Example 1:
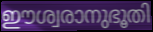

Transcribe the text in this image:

ഈശ്വരാനുഭൂതി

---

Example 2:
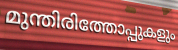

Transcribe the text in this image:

മുന്തിരിത്തോപ്പുകളും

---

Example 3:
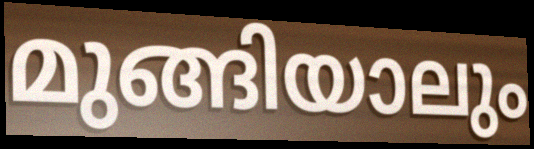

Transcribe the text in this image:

മുങ്ങിയാലും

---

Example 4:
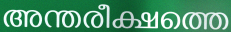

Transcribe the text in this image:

അന്തരീക്ഷത്തെ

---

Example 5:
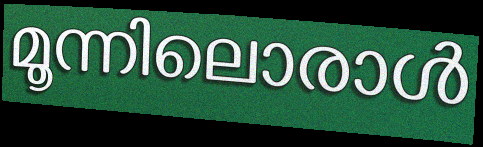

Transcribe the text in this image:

മൂന്നിലൊരാൾ